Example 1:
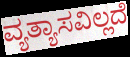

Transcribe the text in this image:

ವ್ಯತ್ಯಾಸವಿಲ್ಲದೆ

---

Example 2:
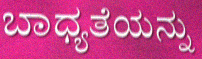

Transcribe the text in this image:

ಬಾಧ್ಯತೆಯನ್ನು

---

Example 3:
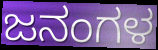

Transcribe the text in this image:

ಜನಂಗಳ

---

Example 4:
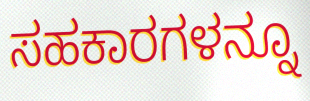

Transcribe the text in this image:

ಸಹಕಾರಗಳನ್ನೂ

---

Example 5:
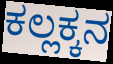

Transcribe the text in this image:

ಕಲ್ಲಕ್ಕನ